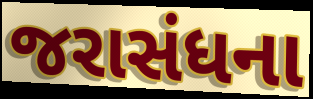
જરાસંધના